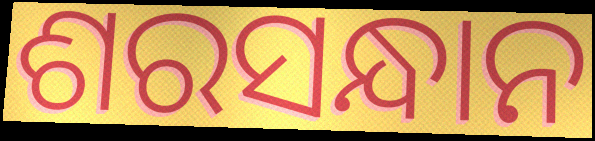
ଶରସନ୍ଧାନ